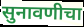
सुनावणीचा